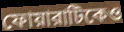
ফোয়ারাটিকেও